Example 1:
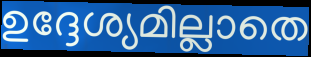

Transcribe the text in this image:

ഉദ്ദേശ്യമില്ലാതെ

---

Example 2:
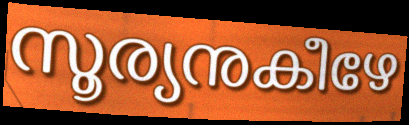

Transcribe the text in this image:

സൂര്യനുകീഴേ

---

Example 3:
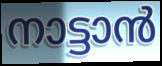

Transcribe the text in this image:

നാട്ടാൻ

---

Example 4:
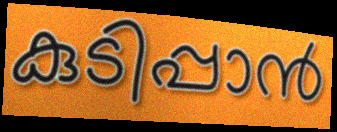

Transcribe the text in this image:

കുടിപ്പാൻ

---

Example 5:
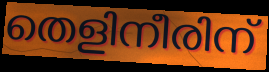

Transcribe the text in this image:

തെളിനീരിന്